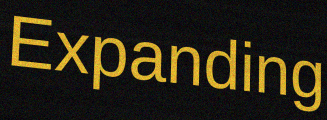
Expanding